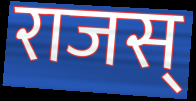
राजस्